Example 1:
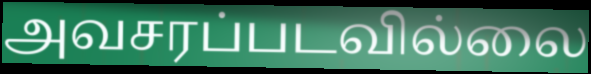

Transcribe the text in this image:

அவசரப்படவில்லை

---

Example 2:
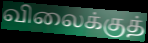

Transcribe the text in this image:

விலைக்குத்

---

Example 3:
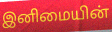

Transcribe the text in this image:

இனிமையின்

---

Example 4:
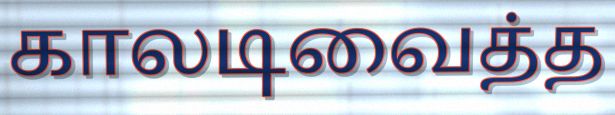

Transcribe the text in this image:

காலடிவைத்த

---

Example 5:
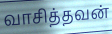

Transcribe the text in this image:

வாசித்தவன்